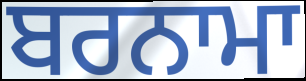
ਬਰਨਾਮਾ